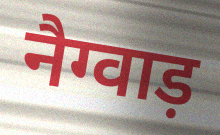
नैग्वाड़